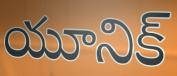
యూనిక్